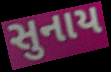
સુનાય